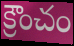
క్రౌంచం